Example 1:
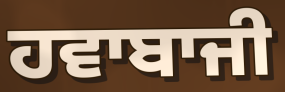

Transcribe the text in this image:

ਹਵਾਬਾਜੀ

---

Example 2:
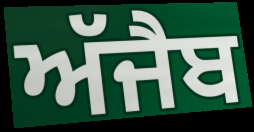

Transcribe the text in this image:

ਅੱਜੈਬ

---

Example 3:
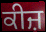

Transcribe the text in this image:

ਕੀਜ਼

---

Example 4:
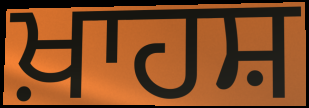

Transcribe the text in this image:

ਖ਼ਾਹਸ਼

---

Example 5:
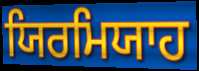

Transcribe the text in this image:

ਯਿਰਮਿਯਾਹ